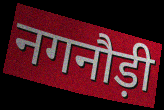
नगनौड़ी